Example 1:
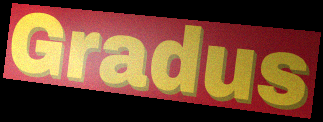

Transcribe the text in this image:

Gradus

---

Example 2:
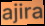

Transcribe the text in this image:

ajira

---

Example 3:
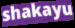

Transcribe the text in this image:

shakayu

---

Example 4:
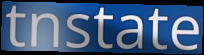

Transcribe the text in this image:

tnstate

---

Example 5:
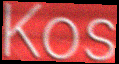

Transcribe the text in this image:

Kos